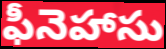
ఫీనెహాసు